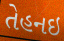
તેહનઇ